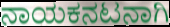
ನಾಯಕನಟನಾಗಿ